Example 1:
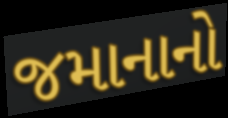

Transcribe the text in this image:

જમાનાનો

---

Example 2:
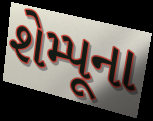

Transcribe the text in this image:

શેમ્પૂના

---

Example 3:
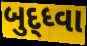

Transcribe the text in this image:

બુદ્ધ્વા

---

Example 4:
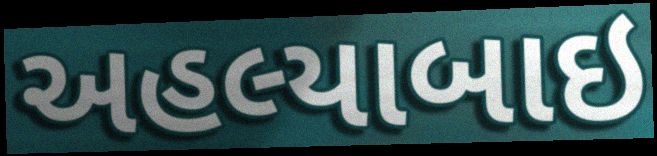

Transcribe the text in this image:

અહલ્યાબાઇ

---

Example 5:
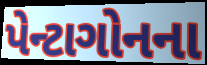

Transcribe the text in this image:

પેન્ટાગોનના